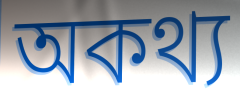
অকথ্য